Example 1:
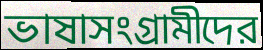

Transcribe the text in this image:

ভাষাসংগ্রামীদের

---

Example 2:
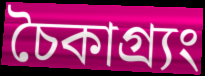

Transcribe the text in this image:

চৈকাগ্র্যং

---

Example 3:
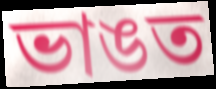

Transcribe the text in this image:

ভাঙত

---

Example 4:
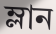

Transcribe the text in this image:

ম্লান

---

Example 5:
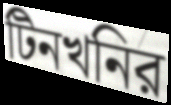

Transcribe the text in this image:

টিনখনির